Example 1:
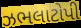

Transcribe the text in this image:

ઝભલાટોપી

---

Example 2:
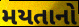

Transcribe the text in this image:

મયતાનો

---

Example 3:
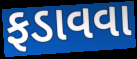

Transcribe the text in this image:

ફડાવવા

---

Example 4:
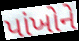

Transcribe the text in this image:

પાંખોને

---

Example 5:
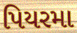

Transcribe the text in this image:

પિયરમા